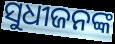
ସୁଧୀଜନଙ୍କ